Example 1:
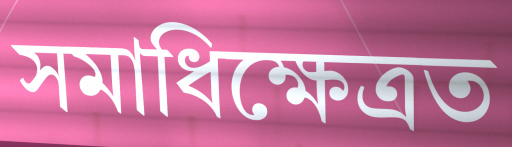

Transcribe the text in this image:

সমাধিক্ষেত্ৰত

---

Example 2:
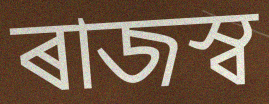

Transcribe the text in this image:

ৰাজস্ব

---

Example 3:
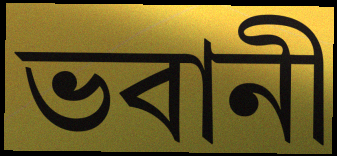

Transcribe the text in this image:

ভবানী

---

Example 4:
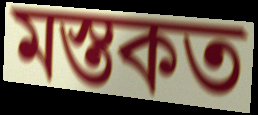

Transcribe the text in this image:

মস্তকত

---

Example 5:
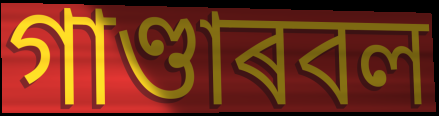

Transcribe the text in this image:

গাণ্ডাৰবল